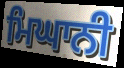
ਮਿਘਾਨੀ